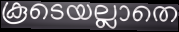
കൂടെയല്ലാതെ